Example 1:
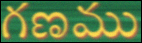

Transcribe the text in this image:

గణము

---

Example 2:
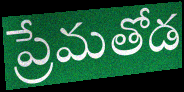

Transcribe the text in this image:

ప్రేమతోడ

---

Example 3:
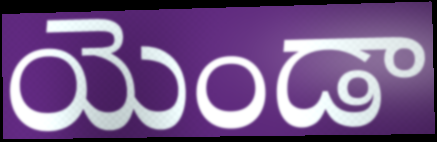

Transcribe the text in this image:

యెండా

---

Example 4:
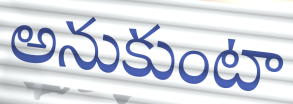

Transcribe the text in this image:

అనుకుంటా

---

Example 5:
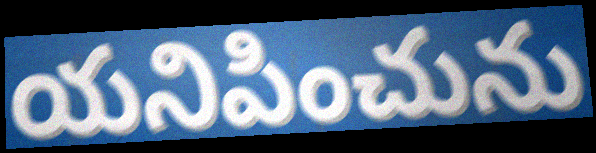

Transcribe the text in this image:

యనిపించును